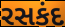
રસકંદ